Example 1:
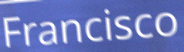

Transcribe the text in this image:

Francisco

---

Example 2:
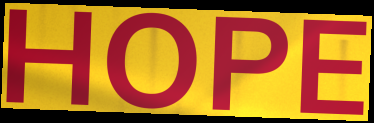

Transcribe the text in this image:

HOPE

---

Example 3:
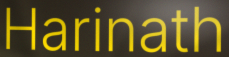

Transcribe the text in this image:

Harinath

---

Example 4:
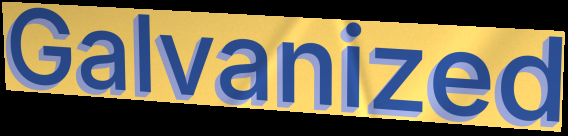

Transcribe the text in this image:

Galvanized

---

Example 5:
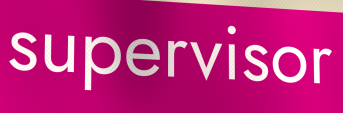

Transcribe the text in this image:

supervisor